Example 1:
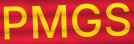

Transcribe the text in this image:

PMGS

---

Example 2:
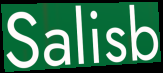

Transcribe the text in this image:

Salisb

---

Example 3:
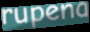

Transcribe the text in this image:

rupena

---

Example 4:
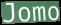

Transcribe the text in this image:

Jomo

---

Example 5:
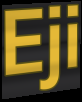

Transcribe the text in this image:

Eji